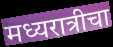
मध्यरात्रीचा